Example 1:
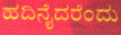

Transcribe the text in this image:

ಹದಿನೈದರೆಂದು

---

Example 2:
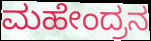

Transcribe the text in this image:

ಮಹೇಂದ್ರನ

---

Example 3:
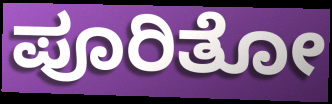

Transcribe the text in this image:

ಪೂರಿತೋ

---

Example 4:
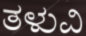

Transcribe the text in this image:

ತಳುವಿ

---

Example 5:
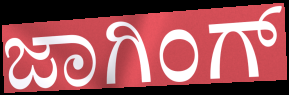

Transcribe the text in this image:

ಜಾಗಿಂಗ್